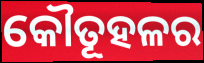
କୌତୂହଳର